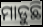
ମାଡୁଛି